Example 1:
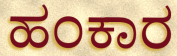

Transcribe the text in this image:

ಹಂಕಾರ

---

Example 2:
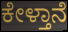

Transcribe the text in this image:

ಕೇಳ್ತಾನೆ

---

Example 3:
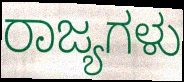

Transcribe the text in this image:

ರಾಜ್ಯಗಳು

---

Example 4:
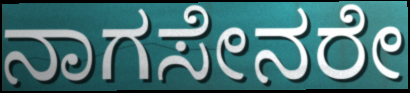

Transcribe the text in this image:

ನಾಗಸೇನರೇ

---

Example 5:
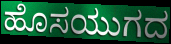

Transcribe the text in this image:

ಹೊಸಯುಗದ